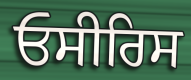
ਓਸੀਰਿਸ